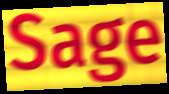
Sage